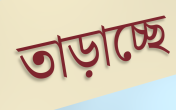
তাড়াচ্ছে